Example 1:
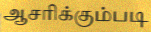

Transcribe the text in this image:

ஆசரிக்கும்படி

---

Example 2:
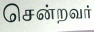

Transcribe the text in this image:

சென்றவர்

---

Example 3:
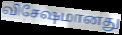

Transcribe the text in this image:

விசேஷமானது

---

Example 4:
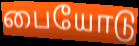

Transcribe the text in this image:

பையோடு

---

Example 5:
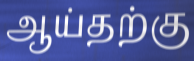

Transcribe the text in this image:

ஆய்தற்கு